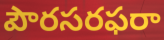
పౌరసరఫరా